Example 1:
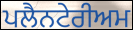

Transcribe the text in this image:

ਪਲੈਨਟੇਰੀਅਮ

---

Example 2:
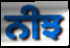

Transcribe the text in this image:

ਨੀਝ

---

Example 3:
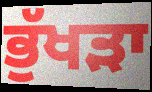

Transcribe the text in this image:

ਭੁੱਖੜਾ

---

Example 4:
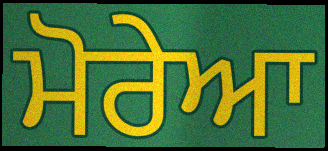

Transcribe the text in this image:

ਮੋਰੇਆ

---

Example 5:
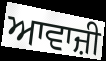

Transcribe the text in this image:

ਆਵਾਜ਼ੀ